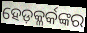
ହେଡ଼କ୍ଳର୍କଙ୍କର